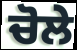
ਚੋਲੇ